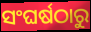
ସଂଘର୍ଷଠାରୁ